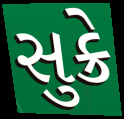
સુક્રે